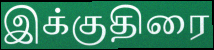
இக்குதிரை